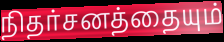
நிதர்சனத்தையும்